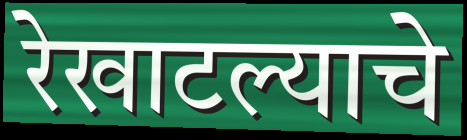
रेखाटल्याचे